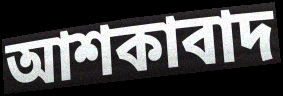
আশকাবাদ